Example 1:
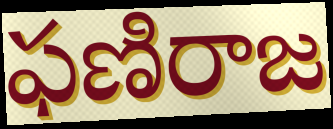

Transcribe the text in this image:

ఫణిరాజ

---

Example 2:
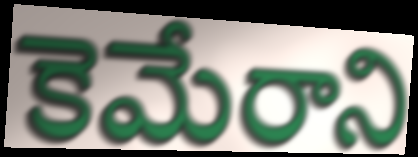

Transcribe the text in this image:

కెమేరాని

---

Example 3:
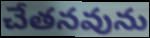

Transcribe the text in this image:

చేతనవును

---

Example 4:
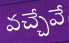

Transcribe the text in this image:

వచ్చేవే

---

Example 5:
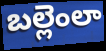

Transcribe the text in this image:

బల్లెంలా